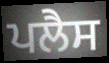
ਪਲੈਸ